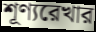
শূণ্যরেখার